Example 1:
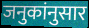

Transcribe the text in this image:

जनुकांनुसार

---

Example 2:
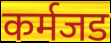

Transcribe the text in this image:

कर्मजड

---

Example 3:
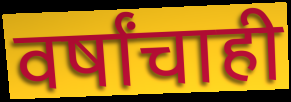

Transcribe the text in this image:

वर्षांचाही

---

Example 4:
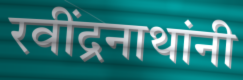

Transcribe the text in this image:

रवींद्रनाथांनी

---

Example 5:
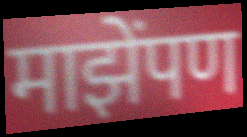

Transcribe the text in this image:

माझेंपण